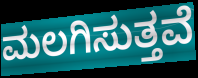
ಮಲಗಿಸುತ್ತವೆ